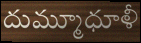
దుమ్మూధూళీ